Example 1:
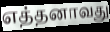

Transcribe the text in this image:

எத்தனாவது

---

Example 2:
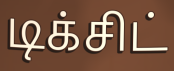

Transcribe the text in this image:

டிக்சிட்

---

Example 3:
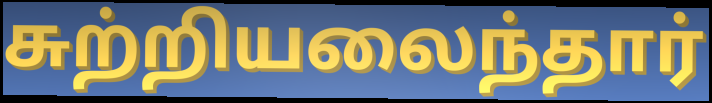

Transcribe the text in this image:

சுற்றியலைந்தார்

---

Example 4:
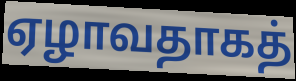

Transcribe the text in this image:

ஏழாவதாகத்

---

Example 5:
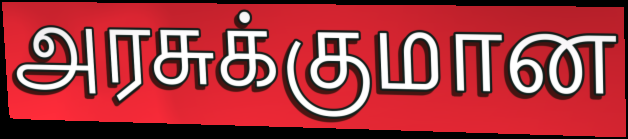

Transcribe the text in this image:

அரசுக்குமான